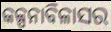
କଳ୍ପନାବିଳାସର